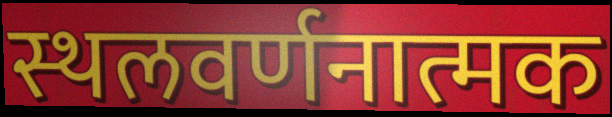
स्थलवर्णनात्मक